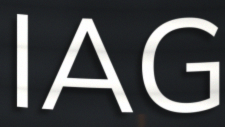
IAG